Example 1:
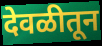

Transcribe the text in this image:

देवळीतून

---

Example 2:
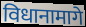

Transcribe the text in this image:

विधानामागे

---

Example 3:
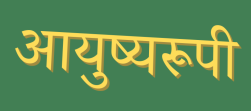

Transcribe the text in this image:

आयुष्यरूपी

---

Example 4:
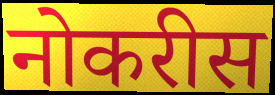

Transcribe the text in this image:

नोकरीस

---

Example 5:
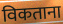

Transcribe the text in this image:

विकताना